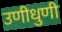
उणीधुणी